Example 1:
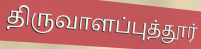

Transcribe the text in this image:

திருவாளப்புத்தூர்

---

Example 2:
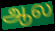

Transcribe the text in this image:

ஆல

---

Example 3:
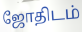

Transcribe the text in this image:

ஜோதிடம்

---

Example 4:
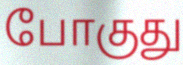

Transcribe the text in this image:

போகுது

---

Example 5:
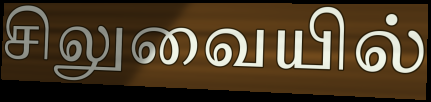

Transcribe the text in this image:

சிலுவையில்